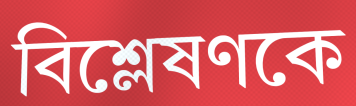
বিশ্লেষণকে